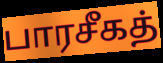
பாரசீகத்